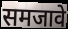
समजावे